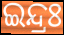
ଇନ୍ଦ୍ରଃ